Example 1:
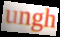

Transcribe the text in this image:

ungh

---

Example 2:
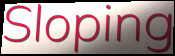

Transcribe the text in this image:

Sloping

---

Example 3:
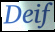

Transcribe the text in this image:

Deif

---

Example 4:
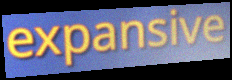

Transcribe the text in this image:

expansive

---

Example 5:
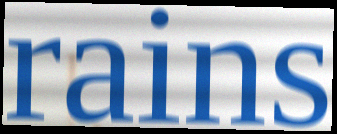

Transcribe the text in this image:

rains